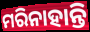
ମରିନାହାନ୍ତି